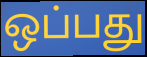
ஒப்பது